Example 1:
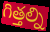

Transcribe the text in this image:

గిత్తల్ని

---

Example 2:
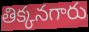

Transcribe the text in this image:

తిక్కనగారు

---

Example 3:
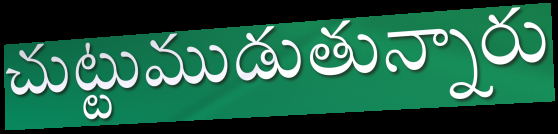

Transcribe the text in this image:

చుట్టుముడుతున్నారు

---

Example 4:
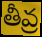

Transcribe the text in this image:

తీవ్ర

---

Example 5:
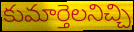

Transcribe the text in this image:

కుమార్తెలనిచ్చి